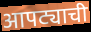
आपट्याची